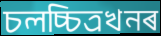
চলচ্চিত্ৰখনৰ